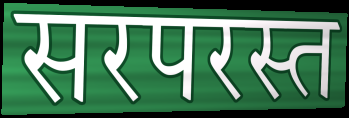
सरपरस्त